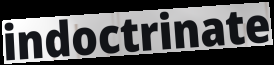
indoctrinate